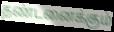
தண்டனைக்கும்